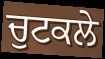
ਚੁਟਕਲੇ